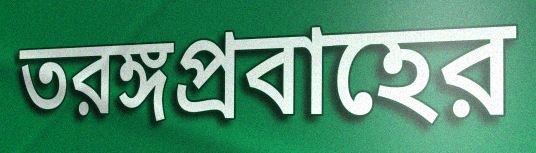
তরঙ্গপ্রবাহের